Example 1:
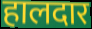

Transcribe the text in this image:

हालदार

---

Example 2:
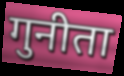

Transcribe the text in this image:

गुनीता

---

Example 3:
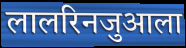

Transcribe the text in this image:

लालरिनजुआला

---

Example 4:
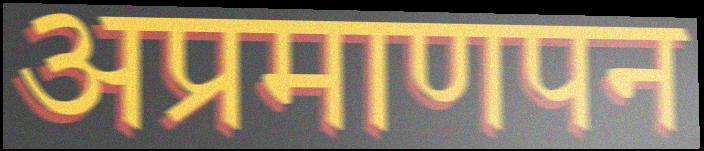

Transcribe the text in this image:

अप्रमाणपन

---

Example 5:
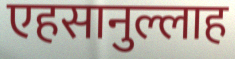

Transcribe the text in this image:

एहसानुल्लाह